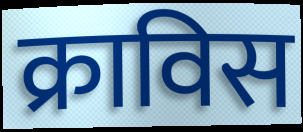
क्राविस